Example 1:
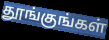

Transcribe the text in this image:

தூங்குங்கள்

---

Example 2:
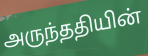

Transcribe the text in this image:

அருந்ததியின்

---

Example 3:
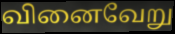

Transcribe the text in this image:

வினைவேறு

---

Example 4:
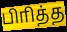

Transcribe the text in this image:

பிரித்த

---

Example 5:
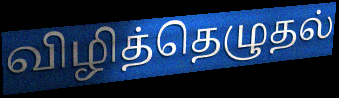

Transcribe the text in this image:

விழித்தெழுதல்